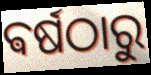
ଵର୍ଷଠାରୁ